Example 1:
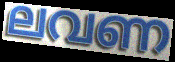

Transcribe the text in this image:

ലവണ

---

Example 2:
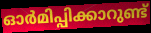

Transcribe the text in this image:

ഓർമിപ്പിക്കാറുണ്ട്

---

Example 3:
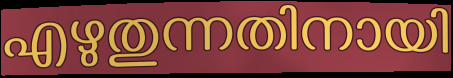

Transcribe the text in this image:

എഴുതുന്നതിനായി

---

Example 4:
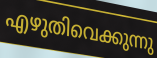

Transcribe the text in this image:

എഴുതിവെക്കുന്നു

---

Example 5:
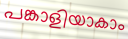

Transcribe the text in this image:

പങ്കാളിയാകാം